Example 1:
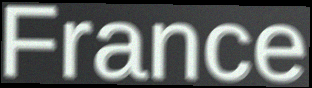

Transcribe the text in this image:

France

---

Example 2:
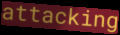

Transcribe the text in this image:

attacking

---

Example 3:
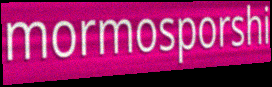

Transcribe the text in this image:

mormosporshi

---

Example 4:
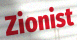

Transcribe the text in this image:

Zionist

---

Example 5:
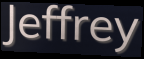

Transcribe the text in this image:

Jeffrey